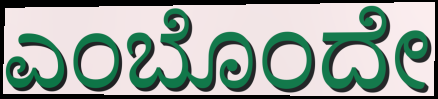
ಎಂಬೊಂದೇ